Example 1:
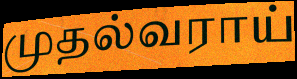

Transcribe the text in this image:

முதல்வராய்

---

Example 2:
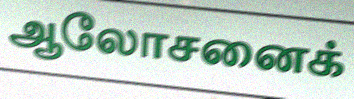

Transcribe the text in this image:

ஆலோசனைக்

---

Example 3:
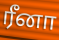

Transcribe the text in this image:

ரீனா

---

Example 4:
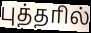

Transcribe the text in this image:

புத்தரில்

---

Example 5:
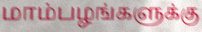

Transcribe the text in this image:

மாம்பழங்களுக்கு